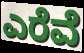
ಎರೆವೆ